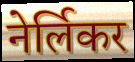
नेर्लिकर